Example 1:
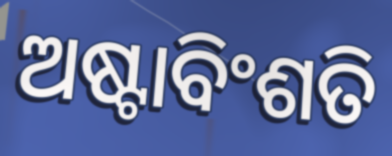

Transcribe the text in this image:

ଅଷ୍ଟାବିଂଶତି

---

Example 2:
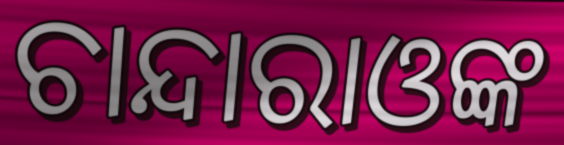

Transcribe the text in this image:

ଚାନ୍ଦାରାଓଙ୍କ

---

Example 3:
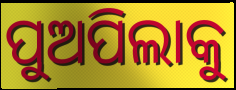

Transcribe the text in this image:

ପୁଅପିଲାକୁ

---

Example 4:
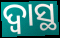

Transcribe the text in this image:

ଦ୍ୱାସ୍ଥ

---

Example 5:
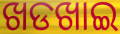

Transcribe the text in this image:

ଖଡଖାଇ